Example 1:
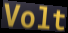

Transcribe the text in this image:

Volt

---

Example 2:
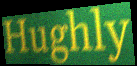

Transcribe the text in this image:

Hughly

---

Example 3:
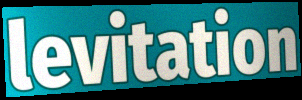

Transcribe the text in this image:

levitation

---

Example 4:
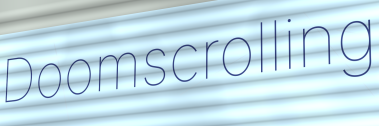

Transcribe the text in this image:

Doomscrolling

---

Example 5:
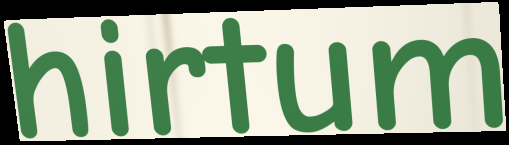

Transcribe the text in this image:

hirtum